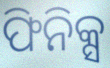
ଫିନିକ୍ସ